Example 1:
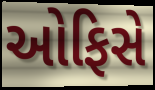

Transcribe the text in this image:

ઓફિસે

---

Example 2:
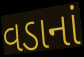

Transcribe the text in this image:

વડાનાં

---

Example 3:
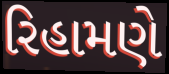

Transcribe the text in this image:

રિહામણે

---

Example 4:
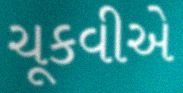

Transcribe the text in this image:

ચૂકવીએ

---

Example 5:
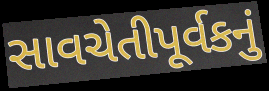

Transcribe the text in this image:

સાવચેતીપૂર્વકનું